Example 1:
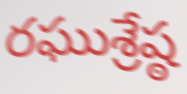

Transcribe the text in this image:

రఘుశ్రేష్ఠ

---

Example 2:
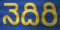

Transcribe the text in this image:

నెదిరి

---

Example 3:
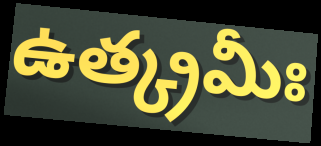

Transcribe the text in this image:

ఉత్క్రమీః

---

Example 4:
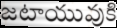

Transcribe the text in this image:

జటాయువుకి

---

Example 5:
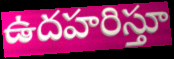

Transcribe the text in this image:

ఉదహరిస్తూ